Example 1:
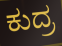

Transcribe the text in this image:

ಕುದ್ರ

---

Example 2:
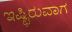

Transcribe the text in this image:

ಇಷ್ಟಿರುವಾಗ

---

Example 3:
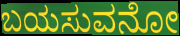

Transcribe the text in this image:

ಬಯಸುವನೋ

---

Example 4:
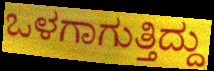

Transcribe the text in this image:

ಒಳಗಾಗುತ್ತಿದ್ದು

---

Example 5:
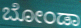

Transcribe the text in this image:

ಬೋಂಡಾ